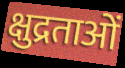
क्षुद्रताओं